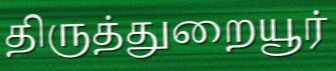
திருத்துறையூர்